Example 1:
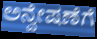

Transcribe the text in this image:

ಅನ್ವೇಷಣೆಗೆ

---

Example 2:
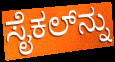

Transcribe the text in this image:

ಸೈಕಲ್‌ನ್ನು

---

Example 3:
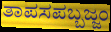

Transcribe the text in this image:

ತಾಪಸಪಬ್ಬಜ್ಜಂ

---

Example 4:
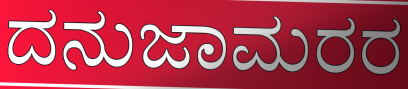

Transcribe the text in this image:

ದನುಜಾಮರರ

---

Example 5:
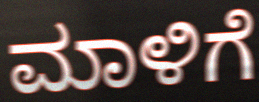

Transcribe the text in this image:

ಮಾಳಿಗೆ